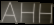
AHH